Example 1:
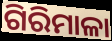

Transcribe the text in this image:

ଗିରିମାଳା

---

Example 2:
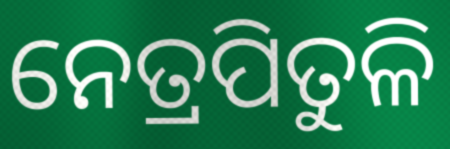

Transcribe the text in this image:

ନେତ୍ରପିତୁଳି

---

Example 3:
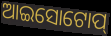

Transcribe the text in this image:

ଆଇସୋଟୋପ୍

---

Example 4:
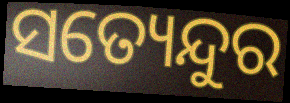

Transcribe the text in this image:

ସତ୍ୟେନ୍ଦୁର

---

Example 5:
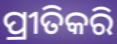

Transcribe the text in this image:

ପ୍ରୀତିକରି